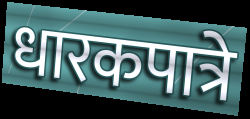
धारकपात्रे